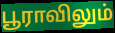
பூராவிலும்